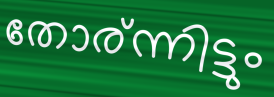
തോര്ന്നിട്ടും